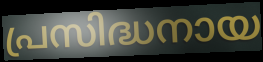
പ്രസിദ്ധനായ